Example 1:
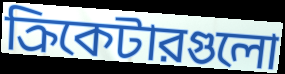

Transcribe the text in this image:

ক্রিকেটারগুলো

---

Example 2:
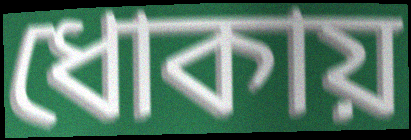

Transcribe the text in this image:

ধোকায়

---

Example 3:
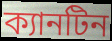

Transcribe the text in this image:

ক্যানটিন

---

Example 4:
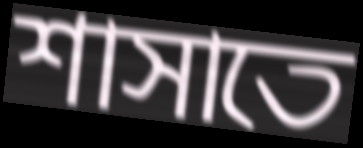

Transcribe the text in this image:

শাসাতে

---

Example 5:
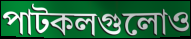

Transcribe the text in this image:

পাটকলগুলোও